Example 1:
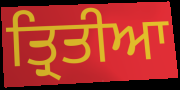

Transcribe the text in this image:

ਤ੍ਰਿਤੀਆ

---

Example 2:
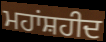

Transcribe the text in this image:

ਮਹਾਂਸ਼ਹੀਦ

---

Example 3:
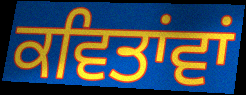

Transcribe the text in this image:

ਕਵਿਤਾਂਵਾਂ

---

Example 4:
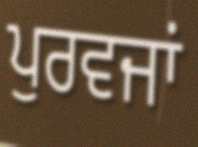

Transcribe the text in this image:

ਪੁਰਵਜਾਂ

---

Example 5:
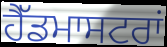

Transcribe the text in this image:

ਹੈੱਡਮਾਸਟਰਾਂ